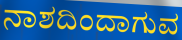
ನಾಶದಿಂದಾಗುವ